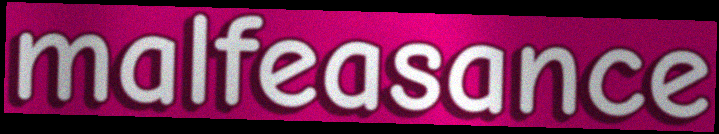
malfeasance